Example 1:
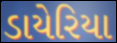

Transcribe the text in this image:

ડાયેરિયા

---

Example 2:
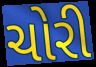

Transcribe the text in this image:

ચોરી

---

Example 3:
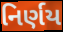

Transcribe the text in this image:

નિર્ણય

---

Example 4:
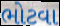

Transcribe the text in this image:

ભોટવા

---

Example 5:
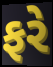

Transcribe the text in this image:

ફરે